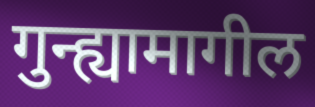
गुन्ह्यामागील